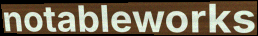
notableworks